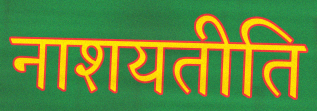
नाशयतीति